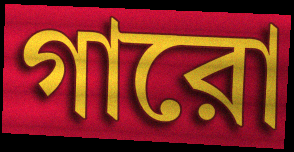
গারো